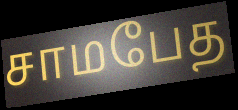
சாமபேத